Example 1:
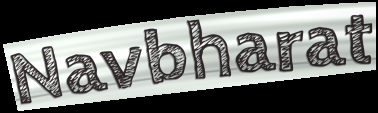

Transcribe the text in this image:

Navbharat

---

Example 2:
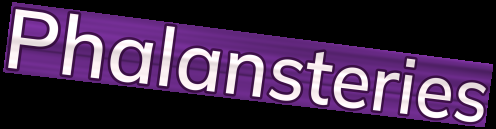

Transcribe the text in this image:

Phalansteries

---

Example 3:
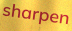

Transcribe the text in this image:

sharpen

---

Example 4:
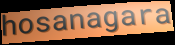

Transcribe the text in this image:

hosanagara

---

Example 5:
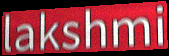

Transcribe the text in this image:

lakshmi